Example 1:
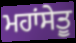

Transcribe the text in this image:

ਮਹਾਂਸੇਤੂ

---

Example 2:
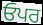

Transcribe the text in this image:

ਓਪਰ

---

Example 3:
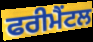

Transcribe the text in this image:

ਫਰੀਮੈਂਟਲ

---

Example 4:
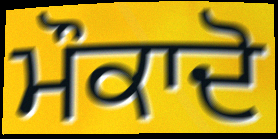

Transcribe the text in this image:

ਮੌਕਾਦੋ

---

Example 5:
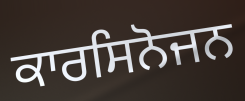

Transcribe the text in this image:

ਕਾਰਸਿਨੋਜਨ